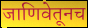
जाणिवेतूनच